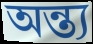
অন্ত্য